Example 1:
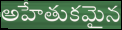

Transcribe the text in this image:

అహేతుకమైన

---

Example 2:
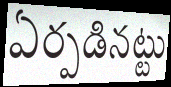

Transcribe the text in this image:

ఏర్పడినట్టు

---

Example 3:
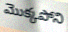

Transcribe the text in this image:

మొక్కపోని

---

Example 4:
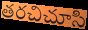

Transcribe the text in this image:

తరచిచూసి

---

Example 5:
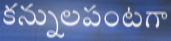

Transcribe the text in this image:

కన్నులపంటగా